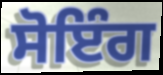
ਸੋਇੰਗ